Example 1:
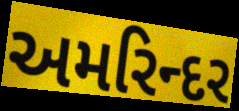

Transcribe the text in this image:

અમરિન્દર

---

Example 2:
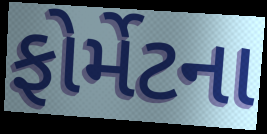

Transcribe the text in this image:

ફોર્મેટના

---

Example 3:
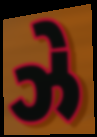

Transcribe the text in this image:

ઝે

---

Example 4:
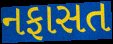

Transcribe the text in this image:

નફાસત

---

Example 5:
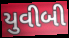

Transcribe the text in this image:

યુવીબી